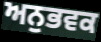
ਅਨੁਭਵਕ